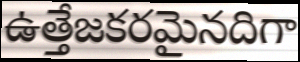
ఉత్తేజకరమైనదిగా